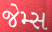
જેમ્સ